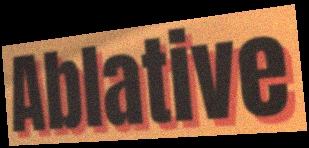
Ablative